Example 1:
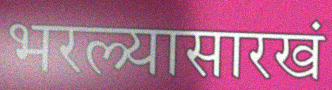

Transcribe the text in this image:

भरल्यासारखं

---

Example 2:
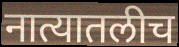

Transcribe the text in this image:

नात्यातलीच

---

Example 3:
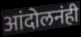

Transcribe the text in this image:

आंदोलनंही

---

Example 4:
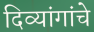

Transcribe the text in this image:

दिव्यांगांचे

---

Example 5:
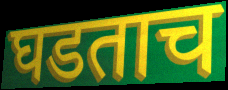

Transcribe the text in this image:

घडताच